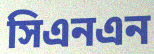
সিএনএন